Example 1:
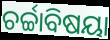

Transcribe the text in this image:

ଚର୍ଚ୍ଚାବିଷୟା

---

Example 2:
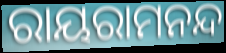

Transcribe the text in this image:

ରାୟରାମନନ୍ଦ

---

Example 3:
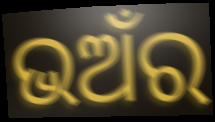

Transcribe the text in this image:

ଭଅଁର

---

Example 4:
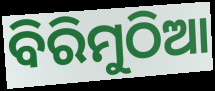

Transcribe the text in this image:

ବିରିମୁଠିଆ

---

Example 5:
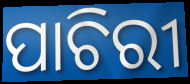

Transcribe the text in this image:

ପାଚିରୀ